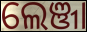
ଲେଞ୍ଜା